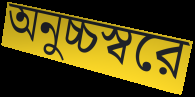
অনুচ্চস্বরে